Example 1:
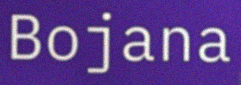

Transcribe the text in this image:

Bojana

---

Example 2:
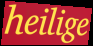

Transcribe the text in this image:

heilige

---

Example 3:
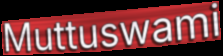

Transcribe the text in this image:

Muttuswami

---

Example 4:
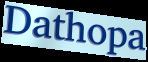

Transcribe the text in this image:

Dathopa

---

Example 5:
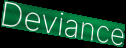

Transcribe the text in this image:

Deviance